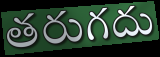
తరుగదు